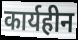
कार्यहीन